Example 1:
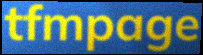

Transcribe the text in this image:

tfmpage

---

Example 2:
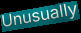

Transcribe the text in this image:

Unusually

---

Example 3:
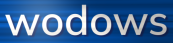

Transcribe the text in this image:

wodows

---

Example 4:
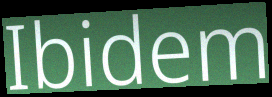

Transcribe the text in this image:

Ibidem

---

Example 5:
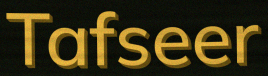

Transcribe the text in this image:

Tafseer